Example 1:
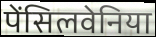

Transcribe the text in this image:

पेंसिलवेनिया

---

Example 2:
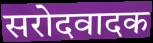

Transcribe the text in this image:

सरोदवादक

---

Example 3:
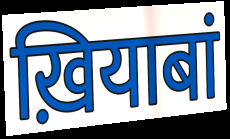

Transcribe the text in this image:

ख़ियाबां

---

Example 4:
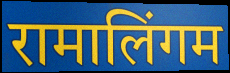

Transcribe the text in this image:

रामालिंगम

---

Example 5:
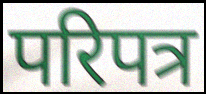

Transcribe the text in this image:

परिपत्र